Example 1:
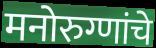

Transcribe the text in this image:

मनोरुग्णांचे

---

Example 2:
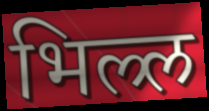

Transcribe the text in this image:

भिल्ल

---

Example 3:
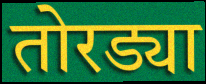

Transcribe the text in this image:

तोरड्या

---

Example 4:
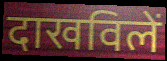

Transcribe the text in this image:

दाखविलें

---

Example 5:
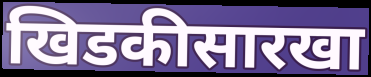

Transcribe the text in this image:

खिडकीसारखा